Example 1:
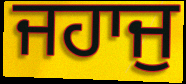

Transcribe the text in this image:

ਜਹਾਜੁ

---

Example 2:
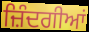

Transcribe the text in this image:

ਜ਼ਿੰਦਗੀਆਂ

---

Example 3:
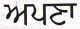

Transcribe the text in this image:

ਅਪਣਾ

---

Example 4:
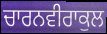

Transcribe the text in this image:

ਚਾਰਨਵੀਰਾਕੁਲ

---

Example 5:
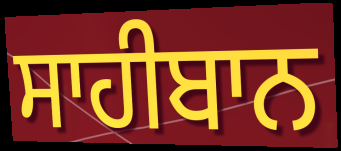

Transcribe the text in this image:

ਸਾਹੀਬਾਨ